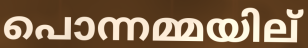
പൊന്നമ്മയില്